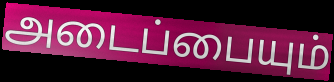
அடைப்பையும்